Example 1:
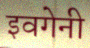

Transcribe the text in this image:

इवगेनी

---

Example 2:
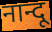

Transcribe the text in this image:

नान्दू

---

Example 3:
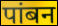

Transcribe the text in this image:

पांबन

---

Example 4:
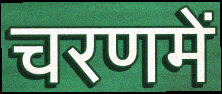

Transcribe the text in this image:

चरणमें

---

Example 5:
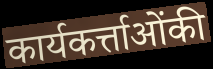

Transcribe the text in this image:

कार्यकर्त्ताओंकी